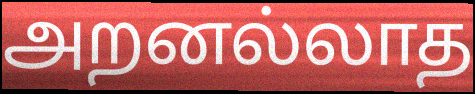
அறனல்லாத